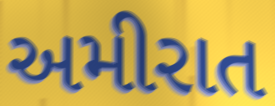
અમીરાત